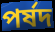
পর্ষদ